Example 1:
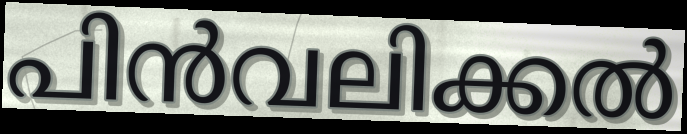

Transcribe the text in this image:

പിൻവലിക്കൽ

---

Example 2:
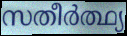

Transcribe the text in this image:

സതീർത്ഥ്യ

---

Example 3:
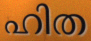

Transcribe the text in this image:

ഹിത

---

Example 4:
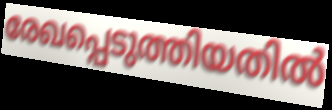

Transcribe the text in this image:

രേഖപ്പെടുത്തിയതിൽ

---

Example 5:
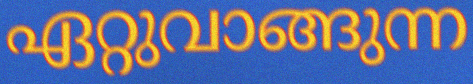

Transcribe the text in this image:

ഏറ്റുവാങ്ങുന്ന